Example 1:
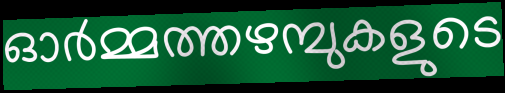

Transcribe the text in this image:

ഓർമ്മത്തഴമ്പുകളുടെ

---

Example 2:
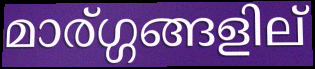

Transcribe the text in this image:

മാര്ഗ്ഗങ്ങളില്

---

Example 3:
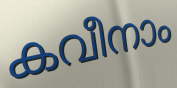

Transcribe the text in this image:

കവീനാം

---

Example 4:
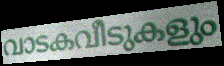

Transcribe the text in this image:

വാടകവീടുകളും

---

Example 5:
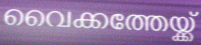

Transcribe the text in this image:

വൈക്കത്തേയ്ക്ക്